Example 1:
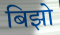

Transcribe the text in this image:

बिझो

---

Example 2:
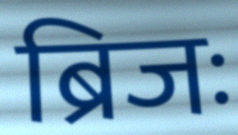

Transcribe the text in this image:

ब्रिजः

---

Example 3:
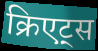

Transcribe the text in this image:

क्रिएट्स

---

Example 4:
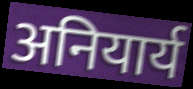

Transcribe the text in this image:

अनियार्य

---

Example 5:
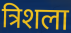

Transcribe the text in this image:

त्रिशला